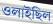
ওলাইছিল